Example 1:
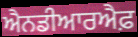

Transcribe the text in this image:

ਐਨਡੀਆਰਐਫ਼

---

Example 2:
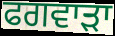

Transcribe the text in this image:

ਫਗਵਾੜਾ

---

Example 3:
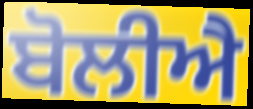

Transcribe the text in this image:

ਬੋਲੀਐ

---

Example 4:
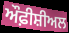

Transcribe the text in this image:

ਔਫ਼ੀਸ਼ੀਅਲ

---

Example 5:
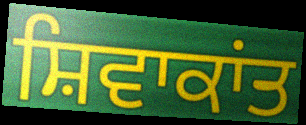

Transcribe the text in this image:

ਸ਼ਿਵਾਕਾਂਤ